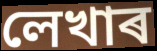
লেখাৰ